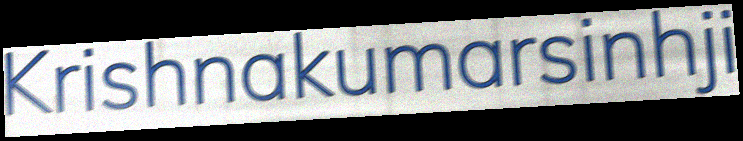
Krishnakumarsinhji